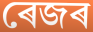
ৰেজৰ